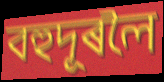
বহুদূৰলৈ